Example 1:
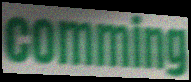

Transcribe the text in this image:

comming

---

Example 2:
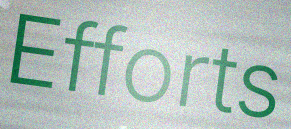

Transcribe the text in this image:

Efforts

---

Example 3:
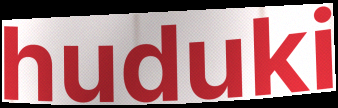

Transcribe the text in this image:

huduki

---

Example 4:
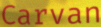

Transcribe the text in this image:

Carvan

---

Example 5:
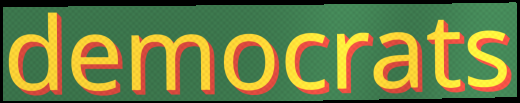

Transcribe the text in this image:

democrats